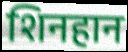
शिनहान